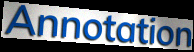
Annotation